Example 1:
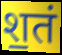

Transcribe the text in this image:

श॒तं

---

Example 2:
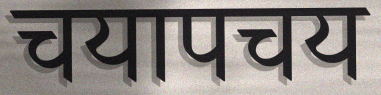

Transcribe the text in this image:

चयापचय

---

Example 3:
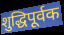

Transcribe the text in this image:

शुद्धिपूर्वक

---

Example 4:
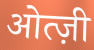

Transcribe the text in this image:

ओत्ज़ी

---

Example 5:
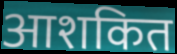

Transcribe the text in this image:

आशकित